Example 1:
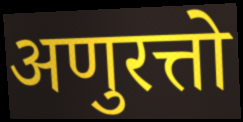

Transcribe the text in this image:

अणुरत्तो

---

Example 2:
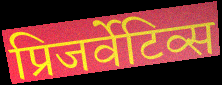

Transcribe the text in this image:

प्रिजर्वेटिव्स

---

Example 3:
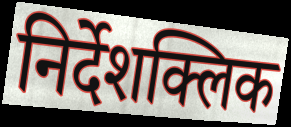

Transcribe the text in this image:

निर्देशक्लिक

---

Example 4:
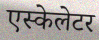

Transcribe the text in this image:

एस्केलेटर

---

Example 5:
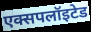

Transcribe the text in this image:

एक्सपलॉइटेड